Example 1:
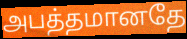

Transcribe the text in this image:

அபத்தமானதே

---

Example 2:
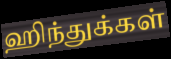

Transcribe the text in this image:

ஹிந்துக்கள்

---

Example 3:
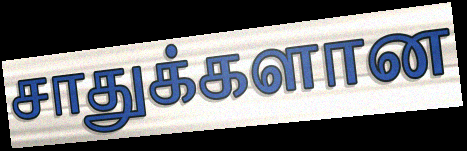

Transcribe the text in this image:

சாதுக்களான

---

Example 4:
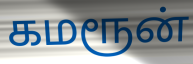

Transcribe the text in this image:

கமரூன்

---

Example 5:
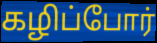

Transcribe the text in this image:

கழிப்போர்